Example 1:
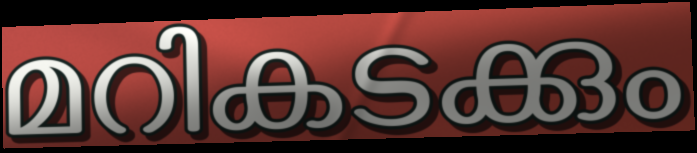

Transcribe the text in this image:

മറികടക്കും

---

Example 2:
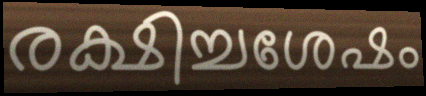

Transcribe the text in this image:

രക്ഷിച്ചശേഷം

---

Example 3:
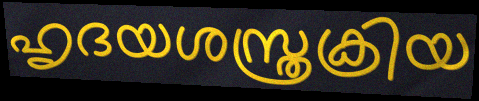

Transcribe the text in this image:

ഹൃദയശസ്ത്രക്രിയ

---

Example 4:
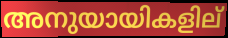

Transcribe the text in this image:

അനുയായികളില്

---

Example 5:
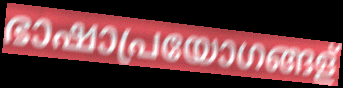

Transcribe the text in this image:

ഭാഷാപ്രയോഗങ്ങള്